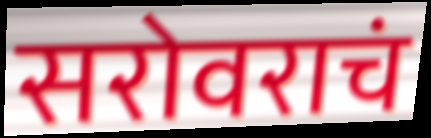
सरोवराचं